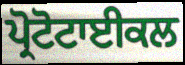
ਪ੍ਰੋਟੋਟਾਈਕਲ